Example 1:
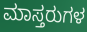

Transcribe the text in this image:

ಮಾಸ್ತರುಗಳ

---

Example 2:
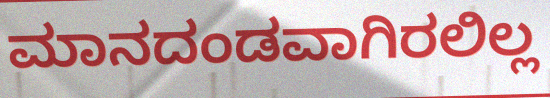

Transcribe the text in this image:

ಮಾನದಂಡವಾಗಿರಲಿಲ್ಲ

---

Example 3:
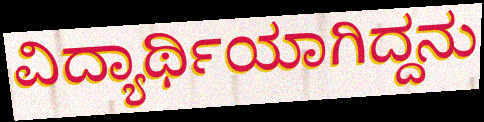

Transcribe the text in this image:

ವಿದ್ಯಾರ್ಥಿಯಾಗಿದ್ದನು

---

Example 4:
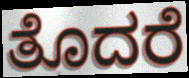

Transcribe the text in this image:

ತೊದರೆ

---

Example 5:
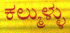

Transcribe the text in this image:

ಕಲ್ಮುಳ್ಳು